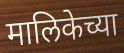
मालिकेच्या